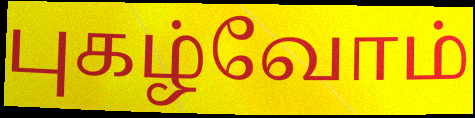
புகழ்வோம்